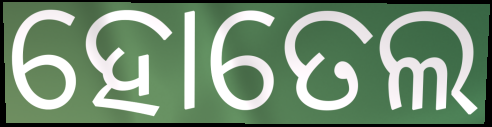
ହୋତେଲ